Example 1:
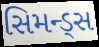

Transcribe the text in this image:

સિમન્ડ્સ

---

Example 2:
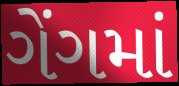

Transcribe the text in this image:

ગેંગમાં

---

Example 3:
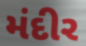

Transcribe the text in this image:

મંદીર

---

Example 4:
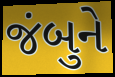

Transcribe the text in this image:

જંબુને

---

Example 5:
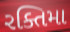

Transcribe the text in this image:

રક્તિમા